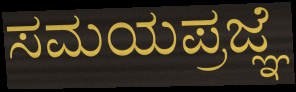
ಸಮಯಪ್ರಜ್ಞೆ